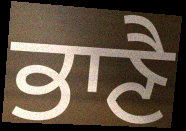
ਭਾਣੈ